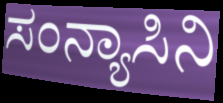
ಸಂನ್ಯಾಸಿನಿ